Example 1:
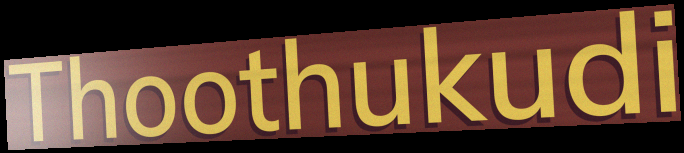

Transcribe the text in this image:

Thoothukudi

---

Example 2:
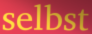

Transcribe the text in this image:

selbst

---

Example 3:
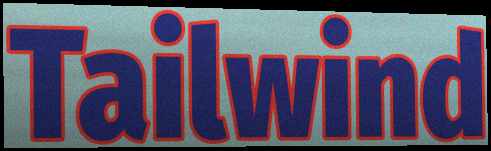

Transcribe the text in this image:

Tailwind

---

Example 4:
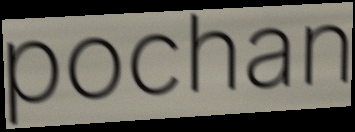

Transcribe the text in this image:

pochan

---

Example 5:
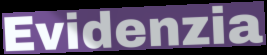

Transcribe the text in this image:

Evidenzia